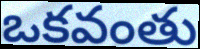
ఒకవంతు